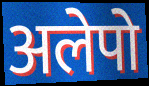
अलेपो